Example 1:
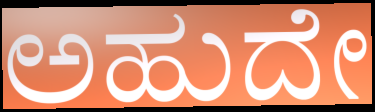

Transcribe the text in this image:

ಅಹುದೇ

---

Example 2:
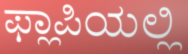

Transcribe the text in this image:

ಫ್ಲಾಪಿಯಲ್ಲಿ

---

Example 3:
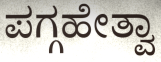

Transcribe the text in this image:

ಪಗ್ಗಹೇತ್ವಾ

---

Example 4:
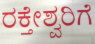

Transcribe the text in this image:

ರಕ್ತೇಶ್ವರಿಗೆ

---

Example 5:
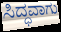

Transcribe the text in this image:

ಸಿದ್ಧವಾಗು